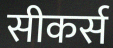
सीकर्स